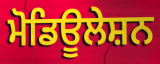
ਮੋਡਿਊਲੇਸ਼ਨ